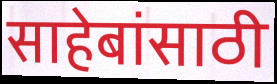
साहेबांसाठी